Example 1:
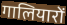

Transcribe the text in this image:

गालियारों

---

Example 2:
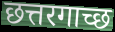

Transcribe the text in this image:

छत्तरगाच्छ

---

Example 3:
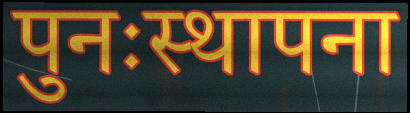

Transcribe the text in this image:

पुनःस्थापना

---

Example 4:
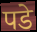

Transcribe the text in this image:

पडे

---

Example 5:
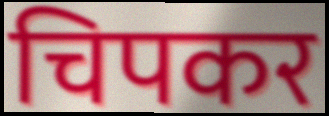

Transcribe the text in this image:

चिपकर